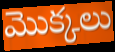
మొక్కలు